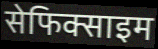
सेफिक्साइम